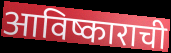
आविष्काराची